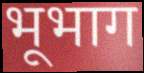
भूभाग